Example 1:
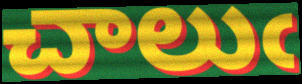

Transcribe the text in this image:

చాలుఁ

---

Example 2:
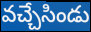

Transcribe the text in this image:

వచ్చేసిండు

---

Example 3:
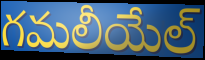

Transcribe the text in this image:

గమలీయేల్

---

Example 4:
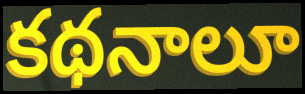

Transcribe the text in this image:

కథనాలూ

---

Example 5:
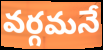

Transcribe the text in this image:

వర్గమనే